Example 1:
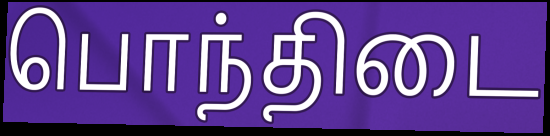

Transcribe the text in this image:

பொந்திடை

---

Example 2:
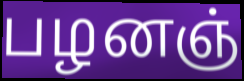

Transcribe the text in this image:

பழனஞ்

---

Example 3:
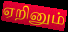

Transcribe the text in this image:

ஏறினும்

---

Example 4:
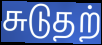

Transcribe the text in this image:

சுடுதற்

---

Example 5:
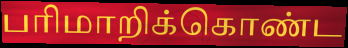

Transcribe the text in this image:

பரிமாறிக்கொண்ட